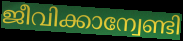
ജീവിക്കാന്വേണ്ടി